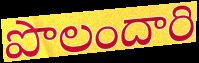
పొలందారి